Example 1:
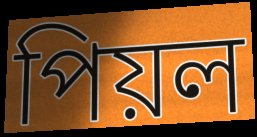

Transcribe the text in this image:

পিয়ল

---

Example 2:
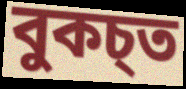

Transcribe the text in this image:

বুকচ্ত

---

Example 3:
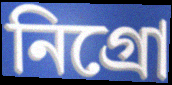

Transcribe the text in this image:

নিগ্ৰো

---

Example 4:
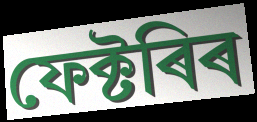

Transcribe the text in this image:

ফেক্টৰিৰ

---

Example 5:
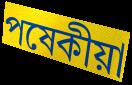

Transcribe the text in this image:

পষেকীয়া